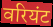
वरियंट